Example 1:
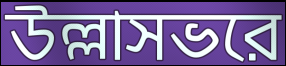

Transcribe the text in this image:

উল্লাসভরে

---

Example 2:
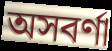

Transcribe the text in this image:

অসবর্ণা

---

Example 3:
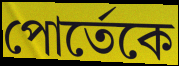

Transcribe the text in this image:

পোর্তেকে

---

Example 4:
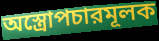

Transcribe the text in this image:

অস্ত্রোপচারমূলক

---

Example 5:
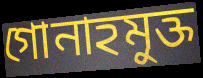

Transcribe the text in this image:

গোনাহমুক্ত